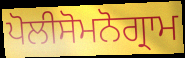
ਪੋਲੀਸੋਮਨੋਗ੍ਰਾਮ